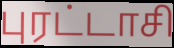
புரட்டாசி